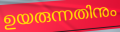
ഉയരുന്നതിനും